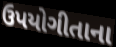
ઉપયોગીતાના